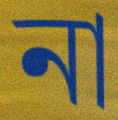
না